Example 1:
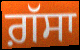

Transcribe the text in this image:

ਗ਼ੱਸਾ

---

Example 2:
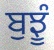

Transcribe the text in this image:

ਬੁਝੂੰ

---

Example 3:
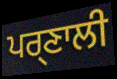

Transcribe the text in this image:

ਪਰ੍ਣਾਲੀ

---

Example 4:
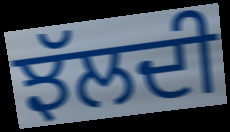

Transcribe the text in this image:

ਝੱਲਦੀ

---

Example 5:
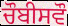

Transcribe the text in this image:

ਚੌਬੀਸਵੌ